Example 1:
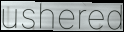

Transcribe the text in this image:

ushered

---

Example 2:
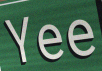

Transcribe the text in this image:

Yee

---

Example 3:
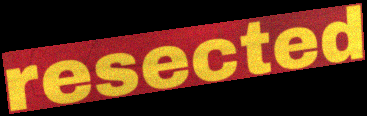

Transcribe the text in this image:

resected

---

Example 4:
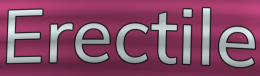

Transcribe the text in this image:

Erectile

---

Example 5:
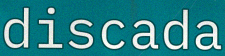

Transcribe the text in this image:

discada